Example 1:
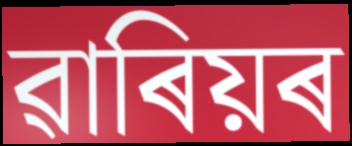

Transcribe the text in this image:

ৱাৰিয়ৰ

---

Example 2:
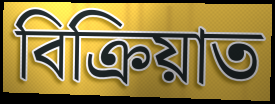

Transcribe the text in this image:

বিক্ৰিয়াত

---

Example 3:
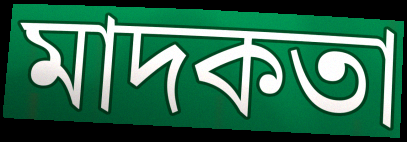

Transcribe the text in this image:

মাদকতা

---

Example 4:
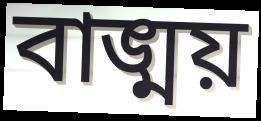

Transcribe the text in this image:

বাঙ্ময়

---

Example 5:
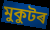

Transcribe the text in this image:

মুকুটৰ